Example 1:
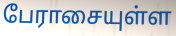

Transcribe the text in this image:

பேராசையுள்ள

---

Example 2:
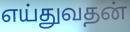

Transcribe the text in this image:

எய்துவதன்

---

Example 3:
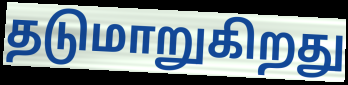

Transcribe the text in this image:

தடுமாறுகிறது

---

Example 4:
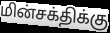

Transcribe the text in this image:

மின்சக்திக்கு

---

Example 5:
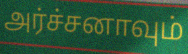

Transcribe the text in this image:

அர்ச்சனாவும்